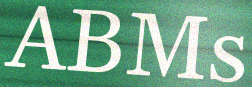
ABMs